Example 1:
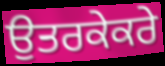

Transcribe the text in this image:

ਉਤਰਕੇਕਰੇ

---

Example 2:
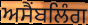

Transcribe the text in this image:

ਅਸੈਂਬਲਿੰਗ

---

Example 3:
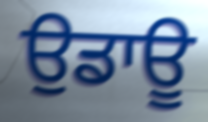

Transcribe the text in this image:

ਉਡਾਊ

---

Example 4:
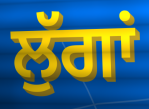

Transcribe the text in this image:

ਲੁੱਗਾਂ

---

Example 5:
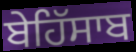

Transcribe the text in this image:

ਬੇਹਿੱਸਾਬ